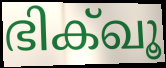
ഭിക്ഖൂ